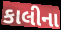
કાલીના